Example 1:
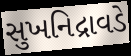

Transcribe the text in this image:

સુખનિદ્રાવડે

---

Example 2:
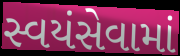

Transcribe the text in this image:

સ્વયંસેવામાં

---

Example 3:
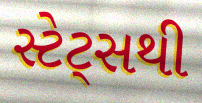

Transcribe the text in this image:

સ્ટેટ્સથી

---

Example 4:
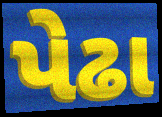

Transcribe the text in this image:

પેઢા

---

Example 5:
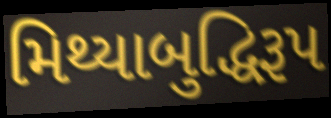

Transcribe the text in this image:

મિથ્યાબુદ્ધિરૂપ